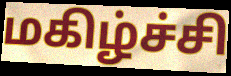
மகிழ்ச்சி